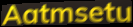
Aatmsetu